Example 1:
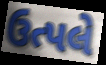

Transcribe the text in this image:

ઉત્પલે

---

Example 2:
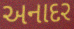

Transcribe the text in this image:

અનાદર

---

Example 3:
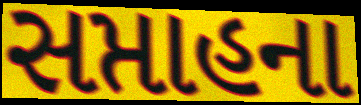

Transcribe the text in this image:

સપ્તાહના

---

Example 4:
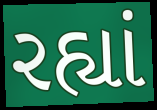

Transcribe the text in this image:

રહ્યાં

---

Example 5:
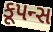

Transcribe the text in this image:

કૂપન્સ